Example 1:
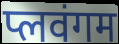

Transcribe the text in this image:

प्लवंगम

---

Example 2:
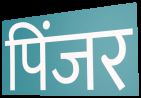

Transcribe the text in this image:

पिंजर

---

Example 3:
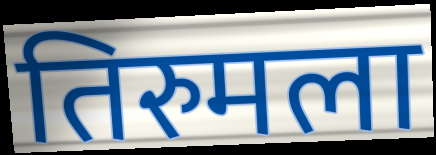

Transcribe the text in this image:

तिरुमला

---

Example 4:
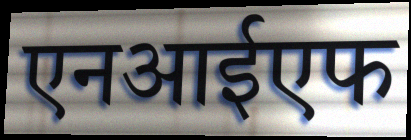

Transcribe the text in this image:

एनआईएफ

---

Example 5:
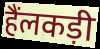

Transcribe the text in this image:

हैंलकड़ी